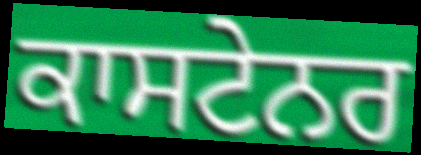
ਕਾਸਟੇਨਰ